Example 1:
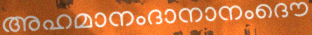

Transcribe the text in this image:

അഹമാനംദാനാനംദൌ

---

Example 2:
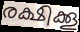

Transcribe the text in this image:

രക്ഷിക്കൂ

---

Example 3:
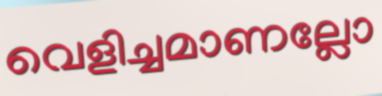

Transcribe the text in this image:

വെളിച്ചമാണല്ലോ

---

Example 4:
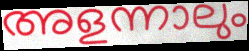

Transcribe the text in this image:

അളന്നാലും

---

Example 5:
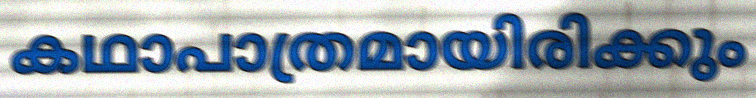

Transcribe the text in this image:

കഥാപാത്രമായിരിക്കും